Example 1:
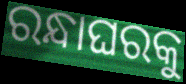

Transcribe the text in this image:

ରନ୍ଧାଘରକୁ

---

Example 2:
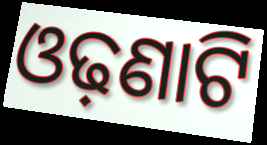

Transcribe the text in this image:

ଓଢ଼ଣାଟି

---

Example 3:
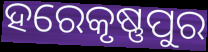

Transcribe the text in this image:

ହରେକୃଷ୍ଣପୁର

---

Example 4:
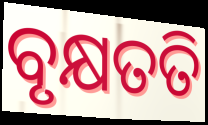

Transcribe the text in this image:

ବୃକ୍ଷତତି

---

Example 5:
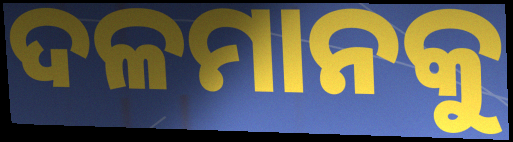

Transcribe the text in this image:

ଦଳମାନକୁ